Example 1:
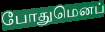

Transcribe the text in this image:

போதுமெனப்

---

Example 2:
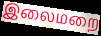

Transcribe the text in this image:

இலைமறை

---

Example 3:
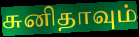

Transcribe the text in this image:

சுனிதாவும்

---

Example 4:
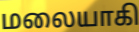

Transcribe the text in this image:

மலையாகி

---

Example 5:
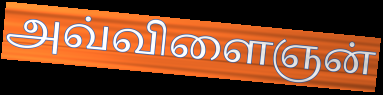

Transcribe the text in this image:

அவ்விளைஞன்